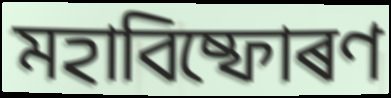
মহাবিষ্ফোৰণ